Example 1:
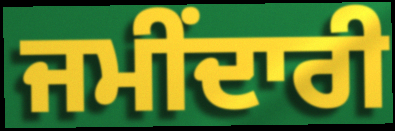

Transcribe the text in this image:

ਜਮੀਂਦਾਰੀ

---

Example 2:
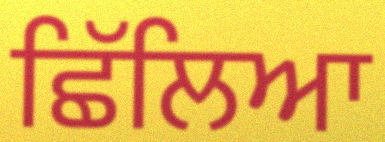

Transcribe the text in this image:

ਛਿੱਲਿਆ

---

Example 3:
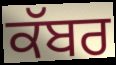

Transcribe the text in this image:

ਕੱਬਰ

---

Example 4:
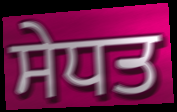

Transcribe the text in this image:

ਸੇਧਤ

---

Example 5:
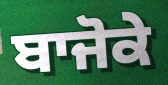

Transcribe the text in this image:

ਬਾਜੋਕੇ